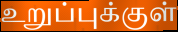
உறுப்புக்குள்